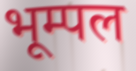
भूम्पल